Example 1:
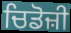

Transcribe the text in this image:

ਚਿਡੋਜ਼ੀ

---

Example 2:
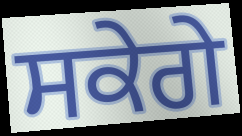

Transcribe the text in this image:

ਸਕੇਗੇ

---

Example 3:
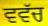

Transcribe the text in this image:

ਵਵੱਚ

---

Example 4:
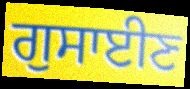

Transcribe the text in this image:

ਗੁਸਾਈਣ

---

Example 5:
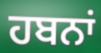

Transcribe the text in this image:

ਹਬਨਾਂ